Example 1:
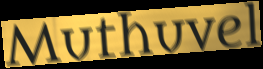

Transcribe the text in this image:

Muthuvel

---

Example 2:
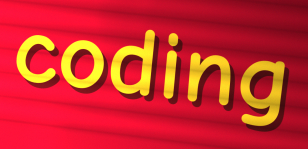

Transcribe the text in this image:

coding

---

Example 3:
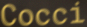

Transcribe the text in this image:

Cocci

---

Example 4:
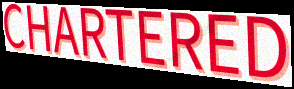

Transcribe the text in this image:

CHARTERED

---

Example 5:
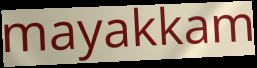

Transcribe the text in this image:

mayakkam